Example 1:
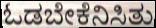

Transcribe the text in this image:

ಓಡಬೇಕೆನಿಸಿತು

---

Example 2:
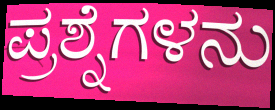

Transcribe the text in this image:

ಪ್ರಶ್ನೆಗಳನು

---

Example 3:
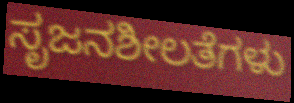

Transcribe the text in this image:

ಸೃಜನಶೀಲತೆಗಳು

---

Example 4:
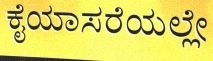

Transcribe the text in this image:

ಕೈಯಾಸರೆಯಲ್ಲೇ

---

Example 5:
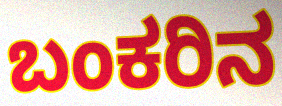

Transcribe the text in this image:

ಬಂಕರಿನ